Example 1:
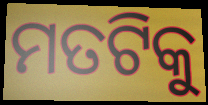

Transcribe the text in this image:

ମତଟିକୁ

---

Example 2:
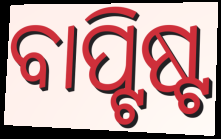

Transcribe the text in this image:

ବାପ୍ଟିଷ୍ଟ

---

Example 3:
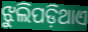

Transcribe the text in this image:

ଝୁଲିପଡ଼ିଥାଏ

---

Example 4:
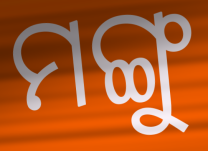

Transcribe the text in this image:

ମଙ୍ଗୁ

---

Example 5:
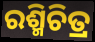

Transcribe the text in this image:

ରଶ୍ମିଚିତ୍ର